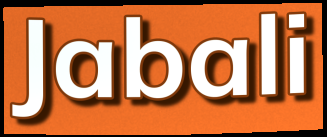
Jabali